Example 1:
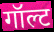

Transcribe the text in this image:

गॉल्ट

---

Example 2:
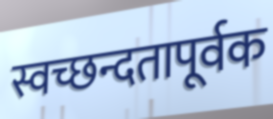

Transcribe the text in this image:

स्वच्छन्दतापूर्वक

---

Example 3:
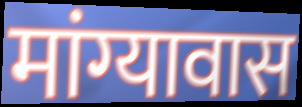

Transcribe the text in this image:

मांग्यावास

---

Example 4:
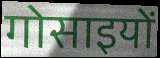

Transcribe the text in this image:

गोसाइयों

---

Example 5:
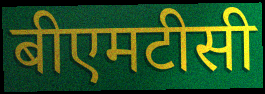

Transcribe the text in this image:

बीएमटीसी